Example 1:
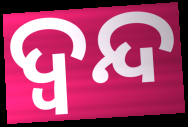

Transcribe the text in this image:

ଦ୍ଵନ୍ଦ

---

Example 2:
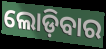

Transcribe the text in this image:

ଲୋଡ଼ିବାର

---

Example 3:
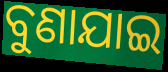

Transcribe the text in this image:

ବୁଣାଯାଇ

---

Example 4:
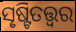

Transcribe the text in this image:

ସୃଷ୍ଟିତତ୍ତ୍ୱର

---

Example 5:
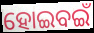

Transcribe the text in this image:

ହୋଇବଇଁ